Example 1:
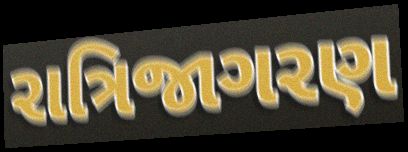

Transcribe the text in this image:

રાત્રિજાગરણ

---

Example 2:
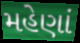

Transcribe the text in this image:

મહેણાં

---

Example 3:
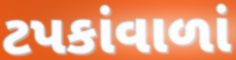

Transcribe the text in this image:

ટપકાંવાળાં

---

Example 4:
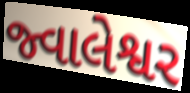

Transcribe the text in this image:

જ્વાલેશ્વર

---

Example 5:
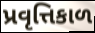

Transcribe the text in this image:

પ્રવૃત્તિકાળ